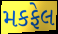
મકફેલ